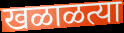
खळाळत्या